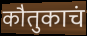
कौतुकाचं